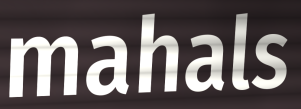
mahals